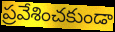
ప్రవేశించకుండా